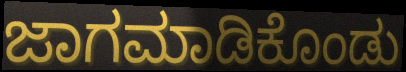
ಜಾಗಮಾಡಿಕೊಂಡು